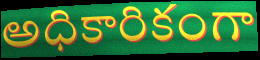
అధికారికంగా